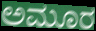
ಅಮೂರ